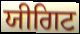
ਯੀਗਿਟ